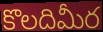
కొలదిమీర